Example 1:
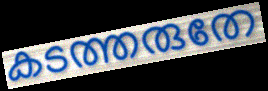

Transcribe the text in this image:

കടത്തരുതേ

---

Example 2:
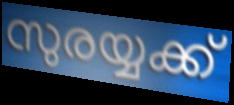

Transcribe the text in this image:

സുരയ്യക്ക്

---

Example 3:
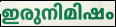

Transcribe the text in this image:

ഇരുനിമിഷം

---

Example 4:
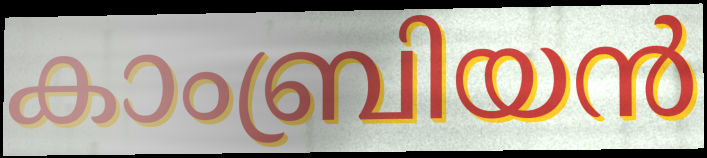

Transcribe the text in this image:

കാംബ്രിയൻ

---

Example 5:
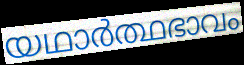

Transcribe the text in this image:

യഥാർത്ഥഭാവം